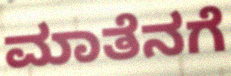
ಮಾತೆನಗೆ